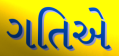
ગતિએ